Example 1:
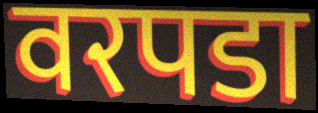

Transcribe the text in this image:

वरपडा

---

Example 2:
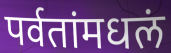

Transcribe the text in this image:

पर्वतांमधलं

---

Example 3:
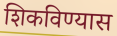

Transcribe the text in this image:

शिकविण्यास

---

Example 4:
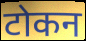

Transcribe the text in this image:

टोकन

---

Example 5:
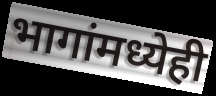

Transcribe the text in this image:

भागांमध्येही